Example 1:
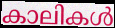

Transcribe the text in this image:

കാലികൾ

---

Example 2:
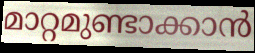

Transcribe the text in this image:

മാറ്റമുണ്ടാക്കാൻ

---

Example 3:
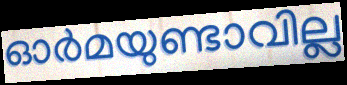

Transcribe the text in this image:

ഓർമയുണ്ടാവില്ല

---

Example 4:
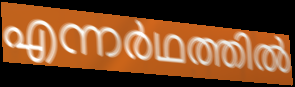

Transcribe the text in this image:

എന്നർഥത്തിൽ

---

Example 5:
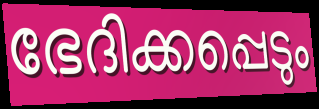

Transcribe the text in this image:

ഭേദിക്കപ്പെടും